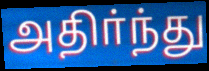
அதிர்ந்து